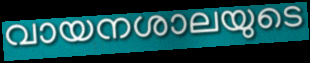
വായനശാലയുടെ